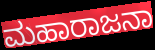
ಮಹಾರಾಜನಾ